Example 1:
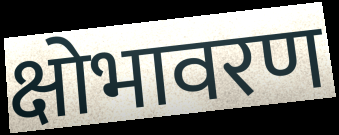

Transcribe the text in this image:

क्षोभावरण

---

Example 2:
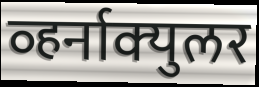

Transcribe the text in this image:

व्हर्नाक्युलर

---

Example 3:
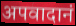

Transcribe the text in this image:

अपवादानं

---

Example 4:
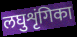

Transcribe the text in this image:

लघुशृंगिका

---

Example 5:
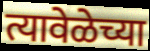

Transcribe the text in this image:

त्यावेळेच्या